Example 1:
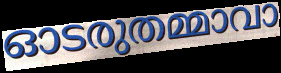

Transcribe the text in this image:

ഓടരുതമ്മാവാ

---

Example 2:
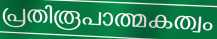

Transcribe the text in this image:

പ്രതിരൂപാത്മകത്വം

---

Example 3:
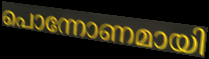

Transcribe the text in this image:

പൊന്നോണമായി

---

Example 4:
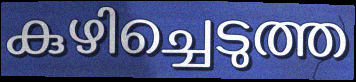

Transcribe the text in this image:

കുഴിച്ചെടുത്ത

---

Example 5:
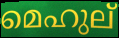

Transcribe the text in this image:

മെഹുല്